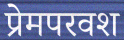
प्रेमपरवश